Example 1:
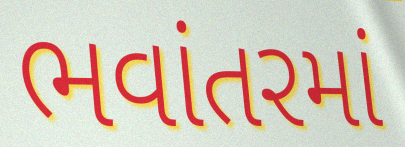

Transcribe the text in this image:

ભવાંતરમાં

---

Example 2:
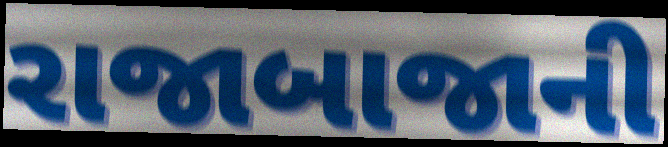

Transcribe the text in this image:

રાજાબાજાની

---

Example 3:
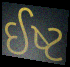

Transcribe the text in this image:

ઈષ્ટ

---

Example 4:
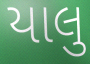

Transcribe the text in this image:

યાલુ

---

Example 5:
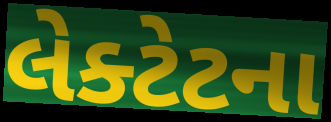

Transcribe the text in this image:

લેક્ટેટના